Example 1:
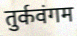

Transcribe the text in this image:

तुर्कवंगम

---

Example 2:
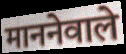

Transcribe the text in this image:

माननेवाले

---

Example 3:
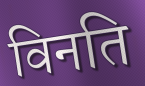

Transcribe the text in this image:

विनति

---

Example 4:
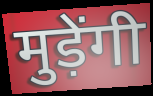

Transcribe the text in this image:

मुड़ेंगी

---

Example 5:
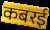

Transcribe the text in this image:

कबरई